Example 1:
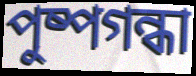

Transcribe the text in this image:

পুষ্পগন্ধা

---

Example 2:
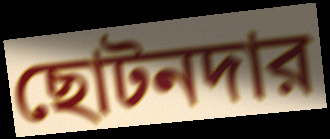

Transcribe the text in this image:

ছোটনদার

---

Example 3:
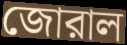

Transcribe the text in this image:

জোরাল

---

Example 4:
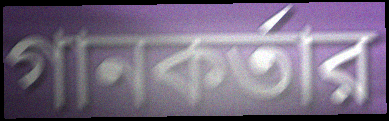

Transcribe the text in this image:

গানকর্তার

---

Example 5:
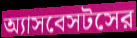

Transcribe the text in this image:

অ্যাসবেসটসের